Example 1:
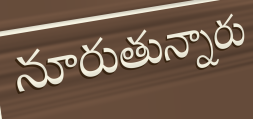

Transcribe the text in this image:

నూరుతున్నారు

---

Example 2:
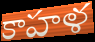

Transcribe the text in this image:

కాహళ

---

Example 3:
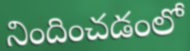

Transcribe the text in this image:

నిందించడంలో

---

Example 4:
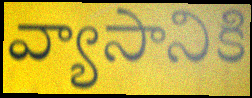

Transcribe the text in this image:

వ్యాసానికి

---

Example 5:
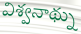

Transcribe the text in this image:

విశ్వనాథ్ను